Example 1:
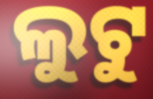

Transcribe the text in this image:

ଲୁଟୁ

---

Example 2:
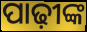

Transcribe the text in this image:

ପାଢ଼ୀଙ୍କ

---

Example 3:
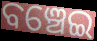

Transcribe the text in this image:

ବଞ୍ଚେଇ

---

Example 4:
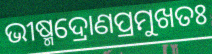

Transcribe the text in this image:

ଭୀଷ୍ମଦ୍ରୋଣପ୍ରମୁଖତଃ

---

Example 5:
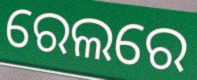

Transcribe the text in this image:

ରେଲରେ